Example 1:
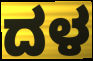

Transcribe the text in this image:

ದಳ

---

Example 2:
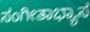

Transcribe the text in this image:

ಸಂಗೀತಾಭ್ಯಾಸ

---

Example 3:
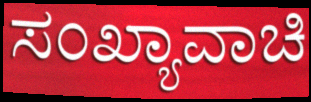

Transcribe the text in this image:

ಸಂಖ್ಯಾವಾಚಿ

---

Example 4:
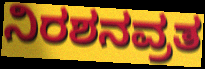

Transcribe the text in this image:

ನಿರಶನವ್ರತ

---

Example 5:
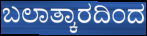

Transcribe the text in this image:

ಬಲಾತ್ಕಾರದಿಂದ